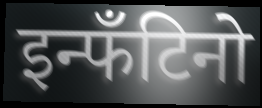
इन्फँटिनो